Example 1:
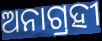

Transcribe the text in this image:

ଅନାଗ୍ରହୀ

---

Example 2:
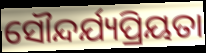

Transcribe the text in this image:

ସୌନ୍ଦର୍ଯ୍ୟପ୍ରିୟତା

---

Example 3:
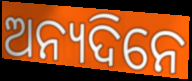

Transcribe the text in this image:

ଅନ୍ୟଦିନେ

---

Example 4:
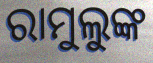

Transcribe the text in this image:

ରାମୁଲୁଙ୍କ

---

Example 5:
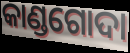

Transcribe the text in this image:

କାଣ୍ଡଗୋଦା